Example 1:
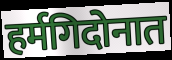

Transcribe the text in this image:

हर्मगिदोनात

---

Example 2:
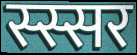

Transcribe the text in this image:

स्स्सर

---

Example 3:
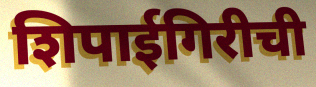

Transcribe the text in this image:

शिपाईगिरीची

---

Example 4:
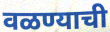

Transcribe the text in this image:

वळण्याची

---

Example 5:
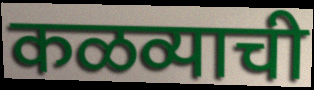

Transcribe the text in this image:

कळव्याची